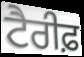
ਟੈਰੀਫ਼